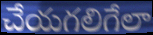
చేయగలిగేలా